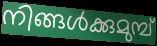
നിങ്ങൾക്കുമുമ്പ്